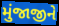
મુંજાજીને